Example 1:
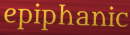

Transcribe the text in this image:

epiphanic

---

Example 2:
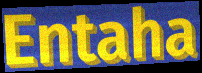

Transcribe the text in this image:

Entaha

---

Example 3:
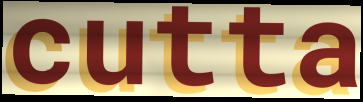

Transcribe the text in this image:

cutta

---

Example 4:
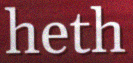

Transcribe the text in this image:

heth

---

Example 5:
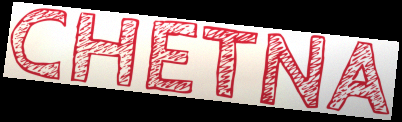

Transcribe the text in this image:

CHETNA